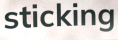
sticking